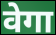
वेगा